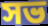
সভ